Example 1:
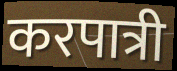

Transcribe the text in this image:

करपात्री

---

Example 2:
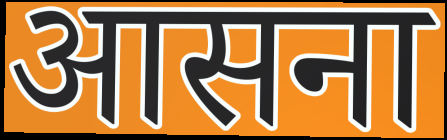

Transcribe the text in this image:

आसना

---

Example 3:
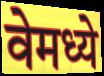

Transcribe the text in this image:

वेमध्ये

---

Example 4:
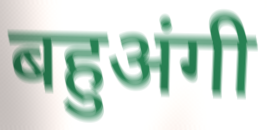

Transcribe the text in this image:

बहुअंगी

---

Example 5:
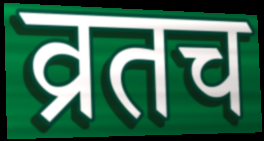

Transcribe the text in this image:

व्रतच